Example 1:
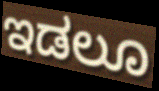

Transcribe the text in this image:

ಇಡಲೂ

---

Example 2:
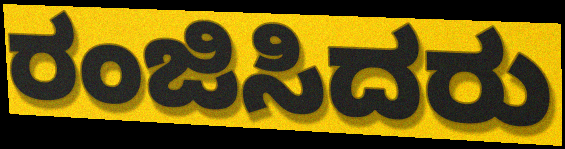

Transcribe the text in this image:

ರಂಜಿಸಿದರು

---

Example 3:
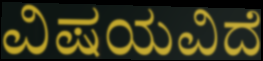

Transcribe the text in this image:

ವಿಷಯವಿದೆ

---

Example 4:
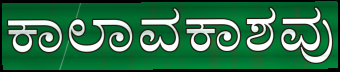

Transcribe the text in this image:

ಕಾಲಾವಕಾಶವು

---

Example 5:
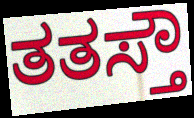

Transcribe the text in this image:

ತತಸ್ತೌ